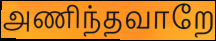
அணிந்தவாறே